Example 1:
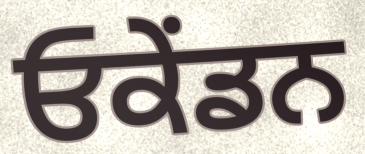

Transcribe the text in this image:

ਓਕੇਂਡਨ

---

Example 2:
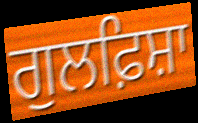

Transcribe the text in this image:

ਗੁਲਫ਼ਿਸ਼ਾ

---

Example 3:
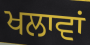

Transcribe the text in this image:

ਖਲਾਵਾਂ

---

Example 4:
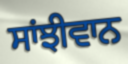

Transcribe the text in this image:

ਸਾਂਝੀਵਾਨ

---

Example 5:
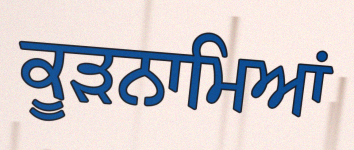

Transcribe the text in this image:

ਕੂੜਨਾਮਿਆਂ